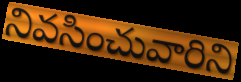
నివసించువారిని